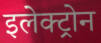
इलेक्ट्रोन